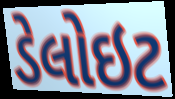
ડેલોઇટ